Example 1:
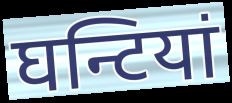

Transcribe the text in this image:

घन्टियां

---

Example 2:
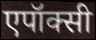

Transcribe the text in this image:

एपॉक्सी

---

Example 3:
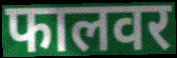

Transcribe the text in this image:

फालवर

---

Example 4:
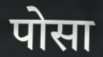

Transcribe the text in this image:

पोसा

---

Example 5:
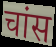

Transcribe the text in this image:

चांस